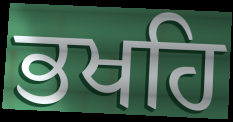
ਭਖਹਿ